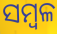
ସମ୍ବଳ